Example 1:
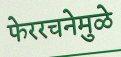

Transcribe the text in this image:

फेररचनेमुळे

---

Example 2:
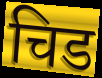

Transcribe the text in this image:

चिड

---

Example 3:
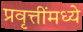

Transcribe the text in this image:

प्रवृत्तींमध्ये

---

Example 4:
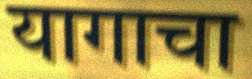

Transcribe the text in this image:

यागाचा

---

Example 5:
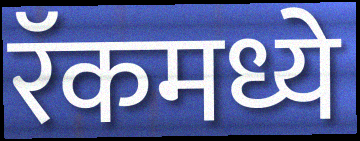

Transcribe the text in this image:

रॅकमध्ये